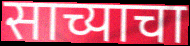
साच्याचा